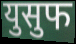
युसुफ